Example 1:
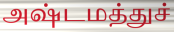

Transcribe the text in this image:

அஷ்டமத்துச்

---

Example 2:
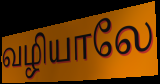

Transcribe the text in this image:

வழியாலே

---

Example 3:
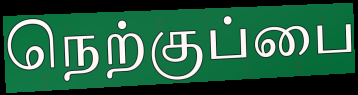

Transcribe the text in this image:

நெற்குப்பை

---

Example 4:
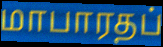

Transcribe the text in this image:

மாபாரதப்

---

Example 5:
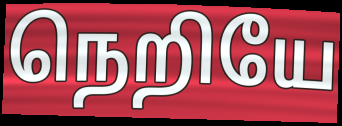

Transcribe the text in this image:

நெறியே